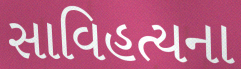
સાવિહત્યના